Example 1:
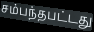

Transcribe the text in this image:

சம்பந்தபட்டது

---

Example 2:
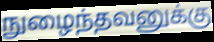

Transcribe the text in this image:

நுழைந்தவனுக்கு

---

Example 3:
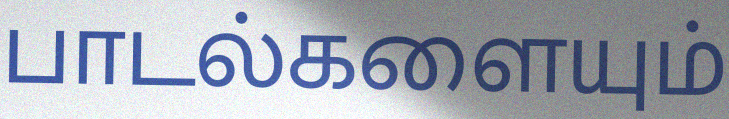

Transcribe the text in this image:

பாடல்களையும்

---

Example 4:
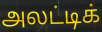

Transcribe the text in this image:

அலட்டிக்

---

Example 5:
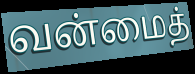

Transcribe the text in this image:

வன்மைத்